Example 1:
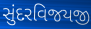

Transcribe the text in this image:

સુંદરવિજયજી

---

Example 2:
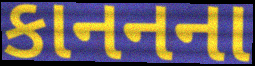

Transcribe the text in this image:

કાનનના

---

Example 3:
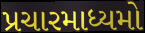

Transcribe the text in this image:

પ્રચારમાધ્યમો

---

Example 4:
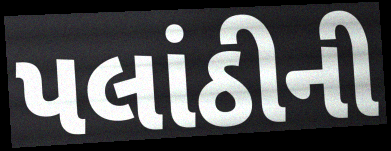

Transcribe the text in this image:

પલાંઠીની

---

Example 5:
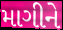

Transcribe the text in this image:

માગીને